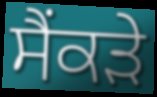
ਸੈਂਕੜੇ